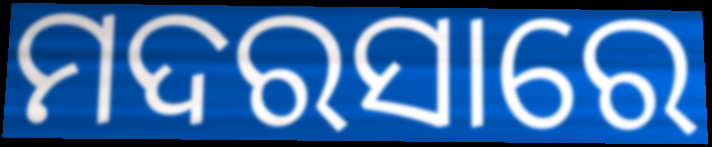
ମଦରସାରେ